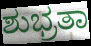
ಶುಭ್ರತಾ